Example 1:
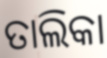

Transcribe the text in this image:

ତାଲିକା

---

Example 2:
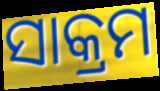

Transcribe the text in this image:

ସାକ୍ରମ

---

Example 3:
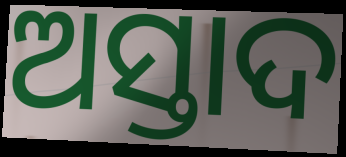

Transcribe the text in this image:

ଅସ୍ତାଦ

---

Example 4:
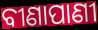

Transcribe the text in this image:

ବୀଣାପାଣୀ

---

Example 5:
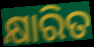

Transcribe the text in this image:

କ୍ଷାରିତ